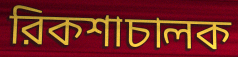
রিকশাচালক